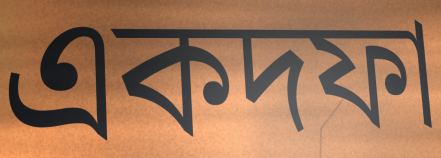
একদফা